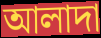
আলাদা